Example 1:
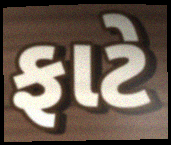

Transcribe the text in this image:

ફાટે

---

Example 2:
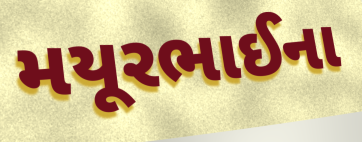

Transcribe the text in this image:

મયૂરભાઈના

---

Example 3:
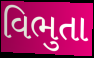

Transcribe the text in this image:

વિભુતા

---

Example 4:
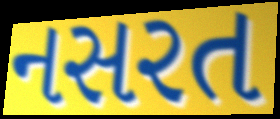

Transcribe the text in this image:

નસરત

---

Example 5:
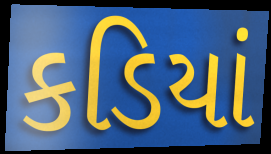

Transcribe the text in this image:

કડિયાં